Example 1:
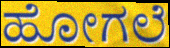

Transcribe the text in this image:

ಹೋಗಲೆ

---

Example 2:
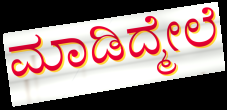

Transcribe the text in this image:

ಮಾಡಿದ್ಮೇಲೆ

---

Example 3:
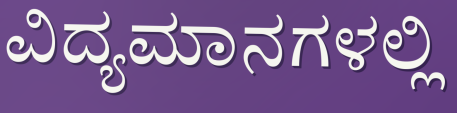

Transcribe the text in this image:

ವಿದ್ಯಮಾನಗಳಲ್ಲಿ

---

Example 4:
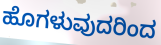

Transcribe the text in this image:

ಹೊಗಳುವುದರಿಂದ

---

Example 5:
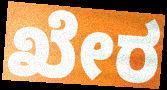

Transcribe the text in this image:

ಖೇರ